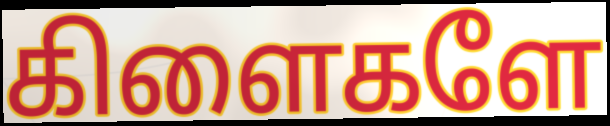
கிளைகளே